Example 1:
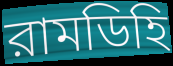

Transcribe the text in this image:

রামডিহি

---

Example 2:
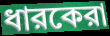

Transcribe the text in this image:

ধারকেরা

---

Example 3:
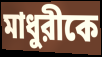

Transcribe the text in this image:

মাধুরীকে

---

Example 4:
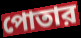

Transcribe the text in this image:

পোতার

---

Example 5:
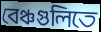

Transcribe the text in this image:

বেঞ্চগুলিতে